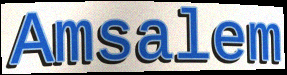
Amsalem